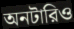
অনটারিও